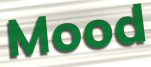
Mood